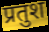
प्रतुश